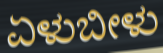
ಏಳುಬೀಳು